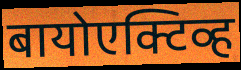
बायोएक्टिव्ह